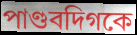
পাণ্ডবদিগকে